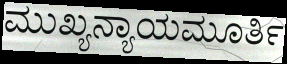
ಮುಖ್ಯನ್ಯಾಯಮೂರ್ತಿ